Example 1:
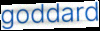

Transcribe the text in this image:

goddard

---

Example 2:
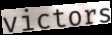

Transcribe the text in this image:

victors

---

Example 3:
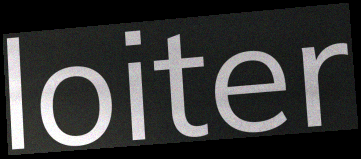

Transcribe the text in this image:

loiter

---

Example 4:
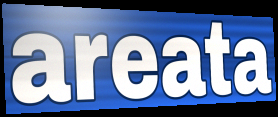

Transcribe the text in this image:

areata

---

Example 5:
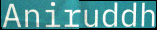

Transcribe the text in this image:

Aniruddh